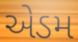
એડમ